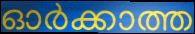
ഓർക്കാത്ത